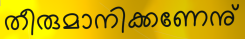
തീരുമാനിക്കണേനു്